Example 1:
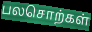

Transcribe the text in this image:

பலசொற்கள்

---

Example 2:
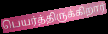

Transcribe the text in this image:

பெயர்த்திருக்கிறார்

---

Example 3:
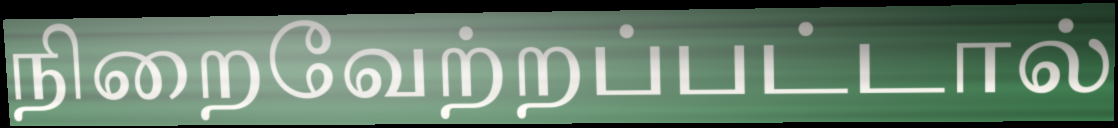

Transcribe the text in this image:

நிறைவேற்றப்பட்டால்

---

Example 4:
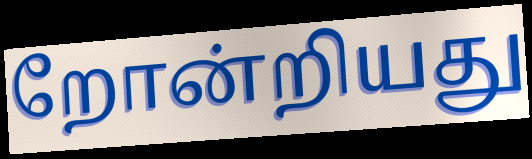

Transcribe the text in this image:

றோன்றியது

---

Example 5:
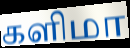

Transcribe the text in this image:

களிமா